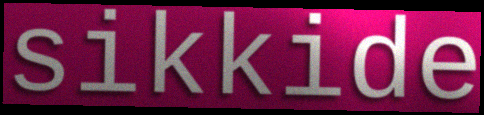
sikkide